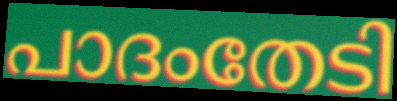
പാദംതേടി